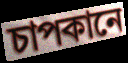
চাপকানে